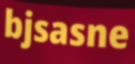
bjsasne